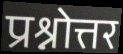
प्रश्नोत्तर